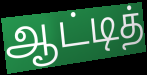
ஆட்டித்